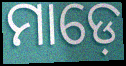
ମାଡ଼େ